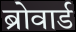
ब्रोवार्ड